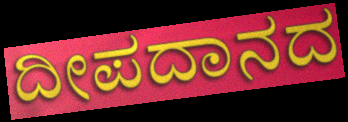
ದೀಪದಾನದ